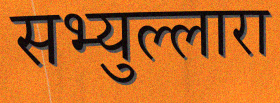
सभ्युल्लारा